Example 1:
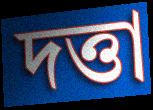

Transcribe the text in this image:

দত্তা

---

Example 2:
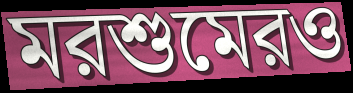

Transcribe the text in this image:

মরশুমেরও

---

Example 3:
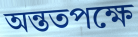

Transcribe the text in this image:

অন্ততপক্ষে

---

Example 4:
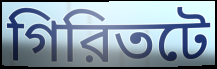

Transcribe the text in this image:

গিরিতটে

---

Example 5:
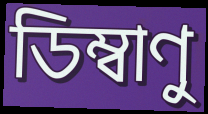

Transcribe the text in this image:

ডিম্বাণু